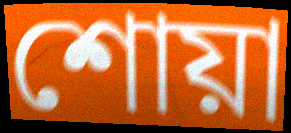
শোয়া